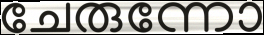
ചേരുന്നോ